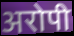
अरोपी